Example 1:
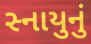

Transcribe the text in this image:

સ્નાયુનું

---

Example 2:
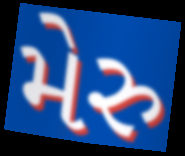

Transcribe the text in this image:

મેરુ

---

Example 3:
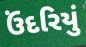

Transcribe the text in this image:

ઉંદરિયું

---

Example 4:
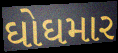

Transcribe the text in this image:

ઘોઘમાર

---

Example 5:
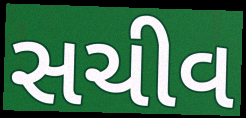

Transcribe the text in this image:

સચીવ